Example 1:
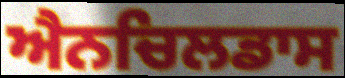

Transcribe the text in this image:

ਐਨਚਿਲਡਾਸ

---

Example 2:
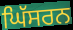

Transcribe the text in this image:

ਘਿੱਸਰਨ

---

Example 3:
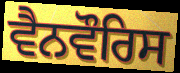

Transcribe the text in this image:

ਵੈਨਵੌਰਿਸ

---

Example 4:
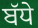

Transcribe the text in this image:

ਬੱਧੇ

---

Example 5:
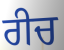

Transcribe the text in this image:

ਰੀਚ